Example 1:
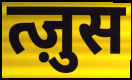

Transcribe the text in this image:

त्ज़ुस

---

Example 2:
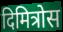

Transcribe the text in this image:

दिमित्रोस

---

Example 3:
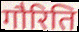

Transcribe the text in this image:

गौरिति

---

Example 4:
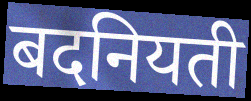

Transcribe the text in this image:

बदनियती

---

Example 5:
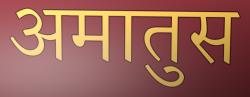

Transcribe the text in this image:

अमातुस